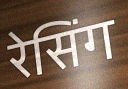
रेसिंग